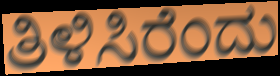
ತಿಳಿಸಿರೆಂದು